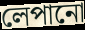
লেপানো